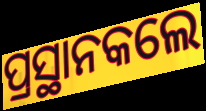
ପ୍ରସ୍ଥାନକଲେ